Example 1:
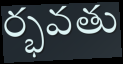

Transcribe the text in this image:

ర్భవతు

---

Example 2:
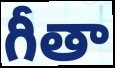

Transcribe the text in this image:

గీతా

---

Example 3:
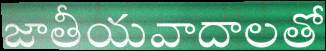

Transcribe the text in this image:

జాతీయవాదాలతో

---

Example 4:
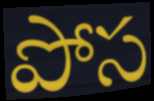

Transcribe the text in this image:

పోస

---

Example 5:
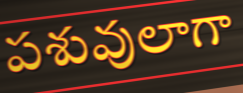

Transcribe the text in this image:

పశువులాగా